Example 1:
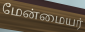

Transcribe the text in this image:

மேன்மையர்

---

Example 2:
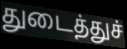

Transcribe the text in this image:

துடைத்துச்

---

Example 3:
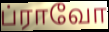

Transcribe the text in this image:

ப்ராவோ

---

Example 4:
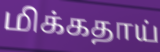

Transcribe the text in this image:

மிக்கதாய்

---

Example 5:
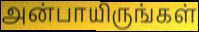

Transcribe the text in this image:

அன்பாயிருங்கள்